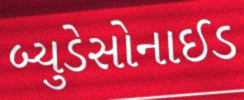
બ્યુડેસોનાઈડ